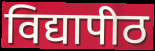
विद्यापीठ